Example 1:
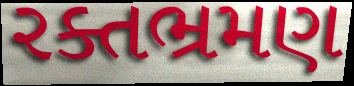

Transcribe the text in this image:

રક્તભ્રમણ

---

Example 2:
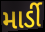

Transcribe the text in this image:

માર્ડી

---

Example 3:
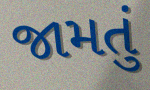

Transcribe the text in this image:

જામતું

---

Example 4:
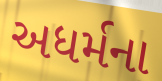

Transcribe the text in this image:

અધર્મના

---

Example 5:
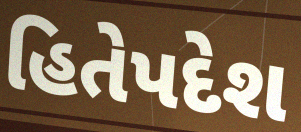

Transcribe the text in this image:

હિતેપદેશ